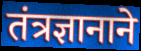
तंत्रज्ञानाने